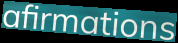
afirmations